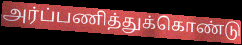
அர்ப்பணித்துக்கொண்டு